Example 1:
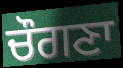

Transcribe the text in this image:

ਚੌਗਣਾ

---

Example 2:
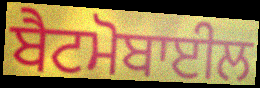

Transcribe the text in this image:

ਬੈਟਮੋਬਾਈਲ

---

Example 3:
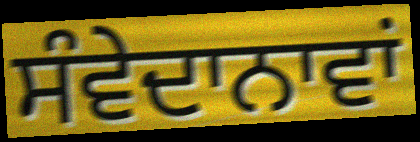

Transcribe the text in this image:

ਸੰਵੇਦਾਨਾਵਾਂ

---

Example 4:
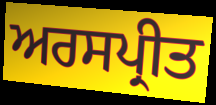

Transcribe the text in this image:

ਅਰਸਪ੍ਰੀਤ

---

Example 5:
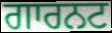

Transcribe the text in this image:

ਗਾਰਨਟ